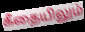
கீதையிலும்